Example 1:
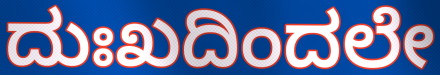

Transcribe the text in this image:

ದುಃಖದಿಂದಲೇ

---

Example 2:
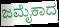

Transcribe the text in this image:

ಜಮೈಕಾದ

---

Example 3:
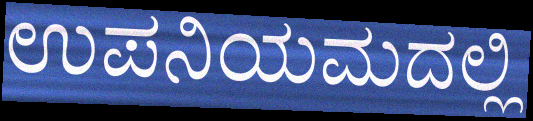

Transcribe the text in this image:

ಉಪನಿಯಮದಲ್ಲಿ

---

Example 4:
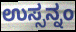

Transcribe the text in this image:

ಉಸ್ಸನ್ನಂ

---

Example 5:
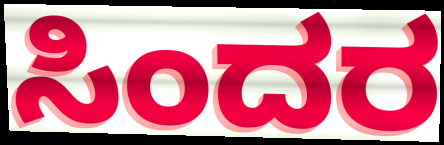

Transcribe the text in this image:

ಸಿಂದರ